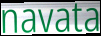
navata